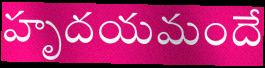
హృదయమందే